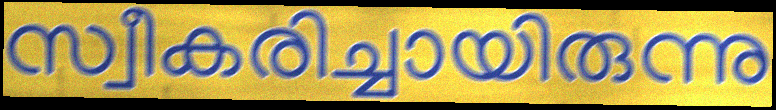
സ്വീകരിച്ചായിരുന്നു